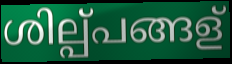
ശില്പ്പങ്ങള്